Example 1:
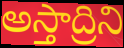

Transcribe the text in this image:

అస్తాద్రిని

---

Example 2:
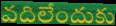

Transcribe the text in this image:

వదిలేందుకు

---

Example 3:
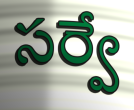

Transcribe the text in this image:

సర్వే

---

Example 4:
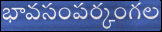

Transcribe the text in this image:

భావసంపర్కంగల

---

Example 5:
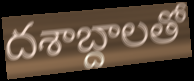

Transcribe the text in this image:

దశాబ్దాలతో